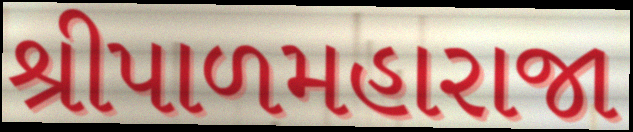
શ્રીપાળમહારાજા